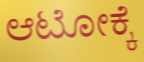
ಆಟೋಕ್ಕೆ